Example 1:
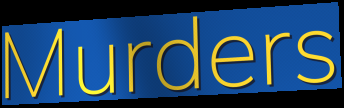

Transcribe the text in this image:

Murders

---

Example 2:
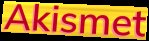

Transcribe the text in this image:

Akismet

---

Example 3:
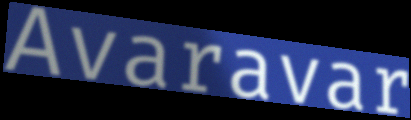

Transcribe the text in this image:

Avaravar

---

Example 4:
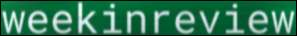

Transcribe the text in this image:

weekinreview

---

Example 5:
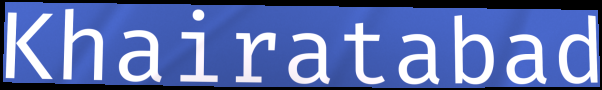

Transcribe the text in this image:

Khairatabad